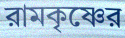
রামকৃষ্ণের